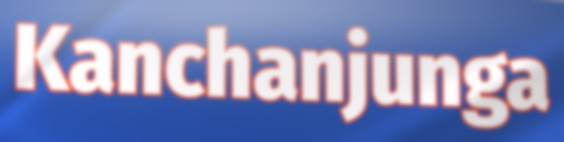
Kanchanjunga